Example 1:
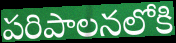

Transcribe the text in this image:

పరిపాలనలోకి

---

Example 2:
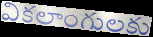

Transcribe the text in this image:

వికలాంగులకు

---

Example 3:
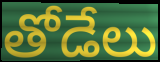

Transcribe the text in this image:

తోడేలు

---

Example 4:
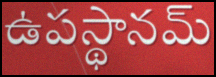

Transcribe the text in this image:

ఉపస్థానమ్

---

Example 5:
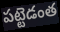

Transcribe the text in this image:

పట్టెడంత